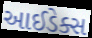
આઈડેક્સ